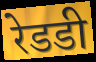
रेडडी